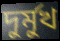
দুর্মুখ